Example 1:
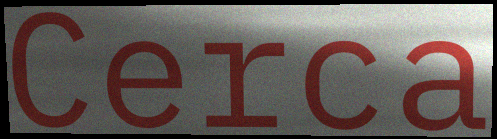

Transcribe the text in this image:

Cerca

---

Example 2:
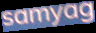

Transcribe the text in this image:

samyag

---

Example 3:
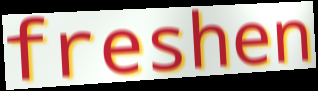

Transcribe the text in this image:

freshen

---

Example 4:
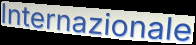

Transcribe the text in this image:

Internazionale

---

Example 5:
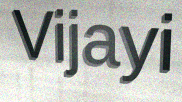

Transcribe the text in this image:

Vijayi